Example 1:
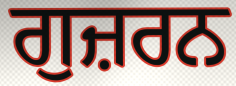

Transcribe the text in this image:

ਗੁਜ਼ਰਨ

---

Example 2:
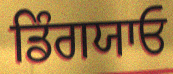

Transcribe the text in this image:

ਡਿੰਗਯਾਓ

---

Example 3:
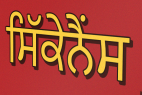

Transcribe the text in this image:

ਸਿੱਕੇਨੈਂਸ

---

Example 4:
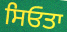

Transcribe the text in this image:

ਸਿਓਤਾ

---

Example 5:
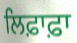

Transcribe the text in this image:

ਲਿਫ਼ਾਫ਼ਾ